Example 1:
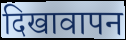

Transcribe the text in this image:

दिखावापन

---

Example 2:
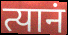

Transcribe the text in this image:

त्यानं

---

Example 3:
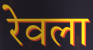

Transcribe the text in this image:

रेवला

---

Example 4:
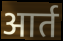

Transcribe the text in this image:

आर्त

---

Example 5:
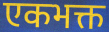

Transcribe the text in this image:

एकभक्त